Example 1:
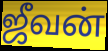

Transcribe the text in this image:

ஜீவன்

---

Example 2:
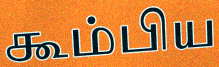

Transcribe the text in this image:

கூம்பிய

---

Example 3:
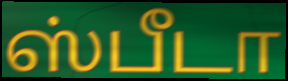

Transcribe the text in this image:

ஸ்பீடா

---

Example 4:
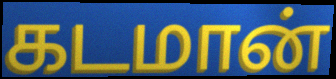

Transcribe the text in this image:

கடமான்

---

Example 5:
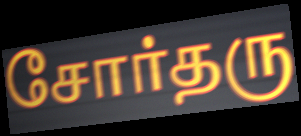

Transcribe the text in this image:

சோர்தரு